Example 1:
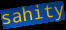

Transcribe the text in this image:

sahity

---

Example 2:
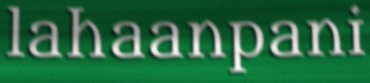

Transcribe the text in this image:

lahaanpani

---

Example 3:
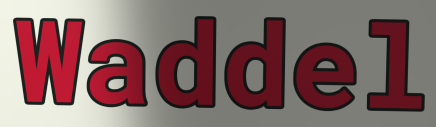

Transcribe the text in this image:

Waddel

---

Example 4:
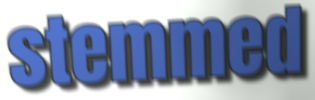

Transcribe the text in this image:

stemmed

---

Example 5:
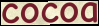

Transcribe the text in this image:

cocoa